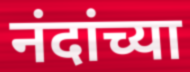
नंदांच्या